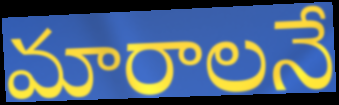
మారాలనే